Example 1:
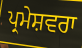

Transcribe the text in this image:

ਪ੍ਰਮੇਸ਼ਵਰਾ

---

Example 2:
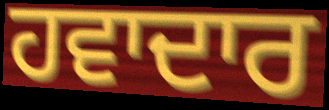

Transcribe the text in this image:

ਹਵਾਦਾਰ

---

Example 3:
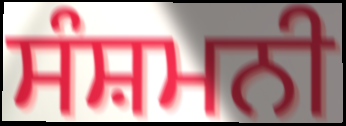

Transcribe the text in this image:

ਸੰਸ਼ਮਨੀ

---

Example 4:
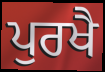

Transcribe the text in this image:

ਪੁਰਖੈ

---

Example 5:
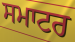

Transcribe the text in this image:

ਸਮਾਟਰ